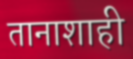
तानाशाही